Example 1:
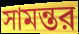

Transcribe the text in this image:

সামন্তর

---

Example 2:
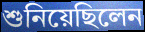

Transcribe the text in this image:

শুনিয়েছিলেন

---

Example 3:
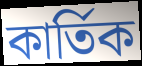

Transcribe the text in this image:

কার্তিক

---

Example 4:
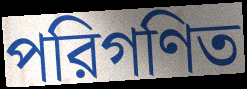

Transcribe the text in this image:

পরিগণিত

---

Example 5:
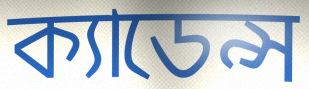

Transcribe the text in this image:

ক্যাডেন্স